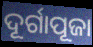
ଦୂର୍ଗାପୂଜା